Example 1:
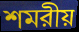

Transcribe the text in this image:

শমরীয়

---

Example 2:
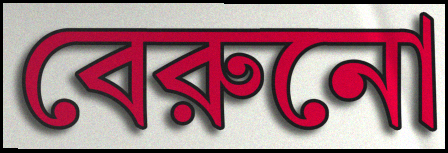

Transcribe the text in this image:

বেরুনো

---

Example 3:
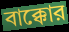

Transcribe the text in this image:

বাক্কোর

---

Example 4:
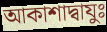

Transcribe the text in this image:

আকাশাদ্বাযুঃ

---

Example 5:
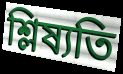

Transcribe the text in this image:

শ্লিষ্যতি